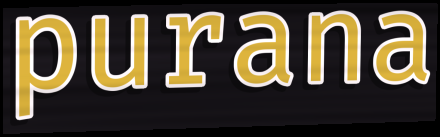
purana